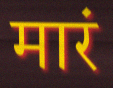
मारं